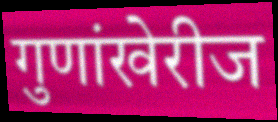
गुणांखेरीज